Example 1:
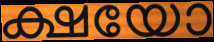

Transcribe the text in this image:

ക്ഷയോ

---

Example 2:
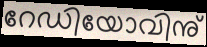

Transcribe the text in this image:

റേഡിയോവിനു്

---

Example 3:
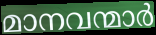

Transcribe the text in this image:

മാനവന്മാർ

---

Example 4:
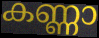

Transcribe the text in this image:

കണ്ണാ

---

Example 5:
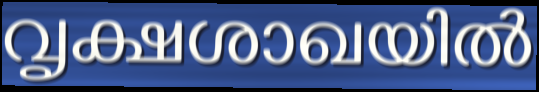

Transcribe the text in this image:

വൃക്ഷശാഖയിൽ